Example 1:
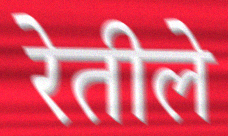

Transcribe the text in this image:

रेतीले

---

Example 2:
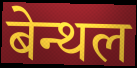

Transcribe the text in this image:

बेन्थल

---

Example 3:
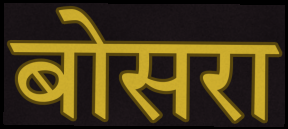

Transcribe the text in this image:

बोसरा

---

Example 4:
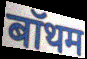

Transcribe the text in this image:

बॉथम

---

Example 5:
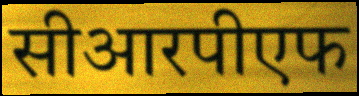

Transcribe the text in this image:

सीआरपीएफ